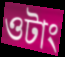
ওটাং